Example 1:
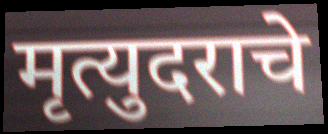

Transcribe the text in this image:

मृत्युदराचे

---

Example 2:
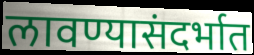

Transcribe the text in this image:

लावण्यासंदर्भात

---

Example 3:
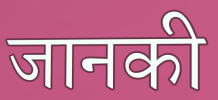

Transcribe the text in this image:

जानकी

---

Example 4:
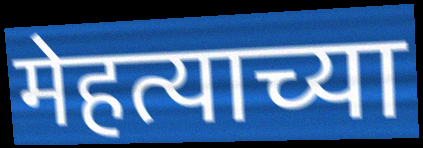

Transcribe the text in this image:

मेहत्याच्या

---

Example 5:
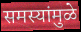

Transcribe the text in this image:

समस्यांमुळे